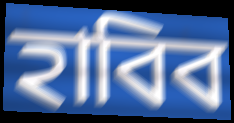
হাবিব